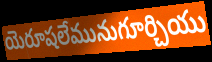
యెరూషలేమునుగూర్చియు